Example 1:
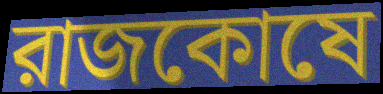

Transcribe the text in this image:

রাজকোষে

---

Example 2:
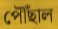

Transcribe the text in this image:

পৌঁছাল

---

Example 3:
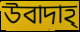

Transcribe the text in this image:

উবাদাহ্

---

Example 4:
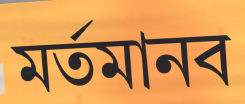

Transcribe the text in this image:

মর্তমানব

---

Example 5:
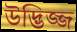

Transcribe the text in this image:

উদ্ভিজ্জ